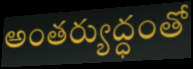
అంతర్యుద్ధంతో